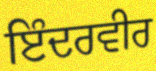
ਇੰਦਰਵੀਰ